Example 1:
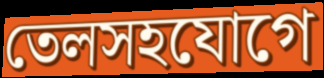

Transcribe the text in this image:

তেলসহযোগে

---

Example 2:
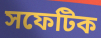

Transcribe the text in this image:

সফেটিক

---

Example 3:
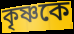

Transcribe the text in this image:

কৃষ্ণকে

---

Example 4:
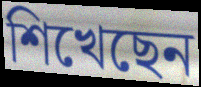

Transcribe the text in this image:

শিখেছেন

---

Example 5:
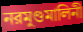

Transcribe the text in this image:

নরমুণ্ডমালিনী